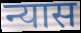
न्यास